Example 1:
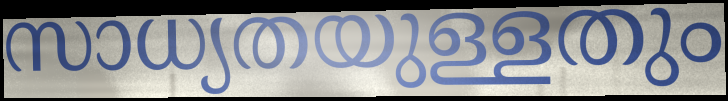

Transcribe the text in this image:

സാധ്യതയുള്ളതും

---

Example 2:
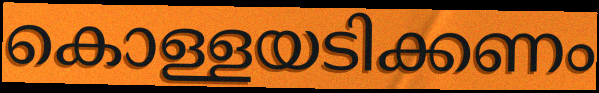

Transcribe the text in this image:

കൊള്ളയടിക്കണം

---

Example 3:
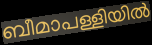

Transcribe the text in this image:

ബീമാപള്ളിയിൽ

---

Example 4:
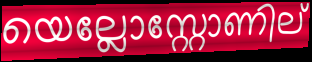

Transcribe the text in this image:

യെല്ലോസ്റ്റോണില്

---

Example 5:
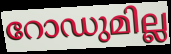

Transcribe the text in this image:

റോഡുമില്ല